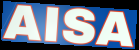
AISA